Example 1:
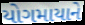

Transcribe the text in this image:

યોગમાયાને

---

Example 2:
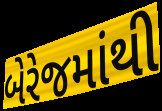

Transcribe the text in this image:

બેરેજમાંથી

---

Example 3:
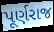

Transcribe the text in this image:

પૂર્ણરાજ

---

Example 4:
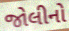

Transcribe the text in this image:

જોલીનો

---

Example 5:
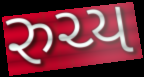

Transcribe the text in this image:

રુચ્ય